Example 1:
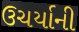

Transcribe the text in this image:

ઉચર્યાની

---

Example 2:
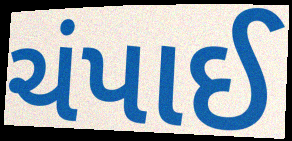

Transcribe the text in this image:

ચંપાઈ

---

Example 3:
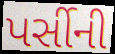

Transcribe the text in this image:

પર્સીની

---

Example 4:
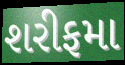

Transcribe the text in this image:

શરીફમા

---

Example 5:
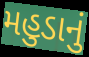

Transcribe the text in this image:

મહુડાનું